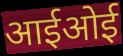
आईओई